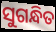
ସୁଗନ୍ଧିତ